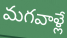
మగవాళ్లే